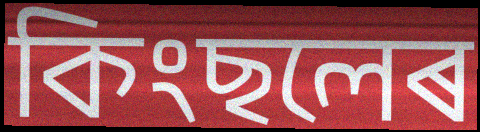
কিংছলেৰ